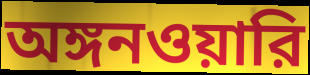
অঙ্গনওয়ারি